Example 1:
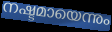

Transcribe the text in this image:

നഷ്ടമായെന്നും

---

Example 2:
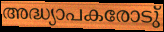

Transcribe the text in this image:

അദ്ധ്യാപകരോടു്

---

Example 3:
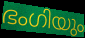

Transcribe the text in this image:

ഭംഗിയും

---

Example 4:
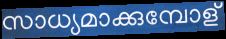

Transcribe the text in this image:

സാധ്യമാക്കുമ്പോള്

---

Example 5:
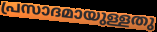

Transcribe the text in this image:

പ്രസാദമായുള്ളതു